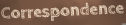
Correspondence